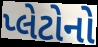
પ્લેટોનો